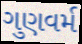
ગુણવર્મ